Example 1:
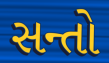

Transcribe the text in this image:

સન્તો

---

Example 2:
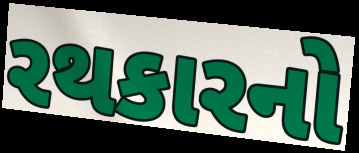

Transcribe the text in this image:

રથકારનો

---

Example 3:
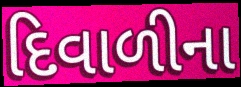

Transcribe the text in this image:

દિવાળીના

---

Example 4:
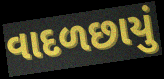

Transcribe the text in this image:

વાદળછાયું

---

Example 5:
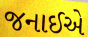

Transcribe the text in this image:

જનાઈએ